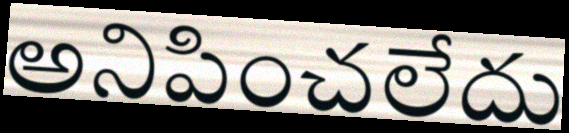
అనిపించలేదు